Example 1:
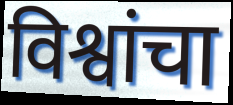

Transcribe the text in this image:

विश्वांचा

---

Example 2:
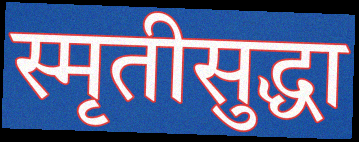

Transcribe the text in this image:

स्मृतीसुद्धा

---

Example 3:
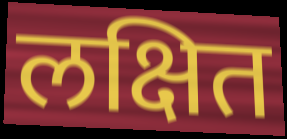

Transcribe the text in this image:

लक्षित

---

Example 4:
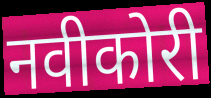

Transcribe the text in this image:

नवीकोरी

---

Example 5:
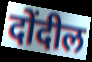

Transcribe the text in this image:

दोंदील